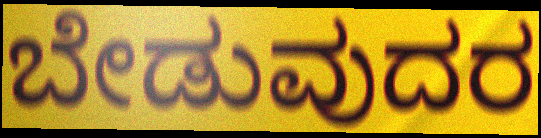
ಬೇಡುವುದರ